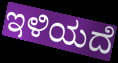
ಇಳಿಯದೆ